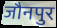
जौनपुर